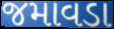
જમાવડા